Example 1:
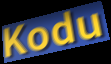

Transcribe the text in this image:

Kodu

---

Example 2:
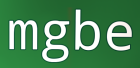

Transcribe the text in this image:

mgbe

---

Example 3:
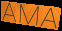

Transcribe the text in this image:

AMA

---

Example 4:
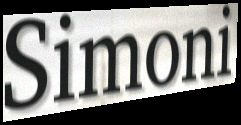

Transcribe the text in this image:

Simoni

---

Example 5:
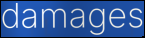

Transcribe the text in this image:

damages